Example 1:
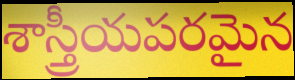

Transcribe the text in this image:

శాస్త్రీయపరమైన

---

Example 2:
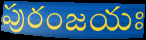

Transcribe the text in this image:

పురంజయః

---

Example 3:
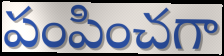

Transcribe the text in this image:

పంపించగా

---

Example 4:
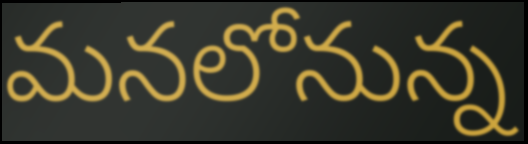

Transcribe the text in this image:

మనలోనున్న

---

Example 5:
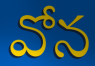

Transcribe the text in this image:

వోన